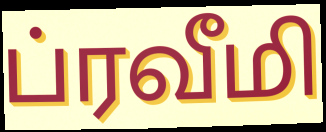
ப்ரவீமி